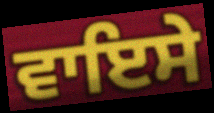
ਵਾਇਸੇ